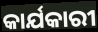
କାର୍ଯକାରୀ